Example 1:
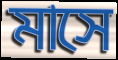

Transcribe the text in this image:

মাসে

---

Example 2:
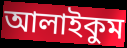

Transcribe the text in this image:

আলাইকুম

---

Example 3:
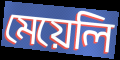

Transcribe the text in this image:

মেয়েলি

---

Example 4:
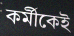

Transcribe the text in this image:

কর্মীকেই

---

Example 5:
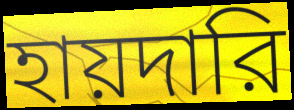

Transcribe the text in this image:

হায়দারি